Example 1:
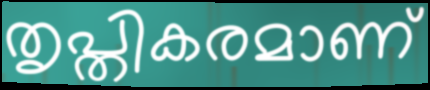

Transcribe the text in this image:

തൃപ്തികരമാണ്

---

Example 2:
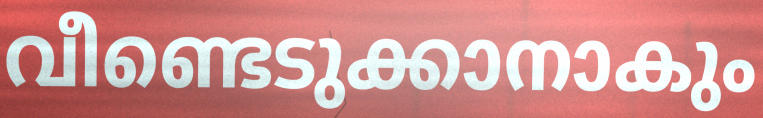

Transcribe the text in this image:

വീണ്ടെടുക്കാനാകും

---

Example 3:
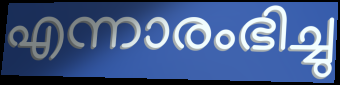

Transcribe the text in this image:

എന്നാരംഭിച്ചു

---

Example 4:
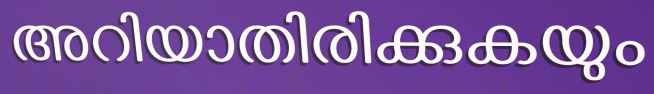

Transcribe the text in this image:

അറിയാതിരിക്കുകയും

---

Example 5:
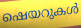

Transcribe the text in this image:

ഷെയറുകൾ